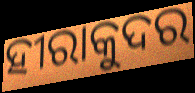
ହୀରାକୁଦର